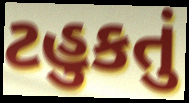
ટહુકતું